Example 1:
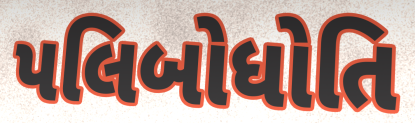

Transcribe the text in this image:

પલિબોધોતિ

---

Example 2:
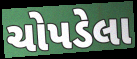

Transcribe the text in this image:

ચોપડેલા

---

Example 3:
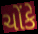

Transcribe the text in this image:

ચોંકે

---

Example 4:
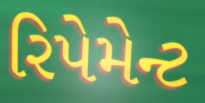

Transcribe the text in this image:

રિપેમેન્ટ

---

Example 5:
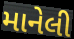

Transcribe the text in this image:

માનેલી